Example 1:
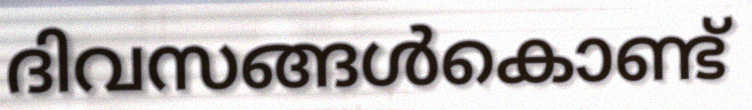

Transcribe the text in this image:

ദിവസങ്ങൾകൊണ്ട്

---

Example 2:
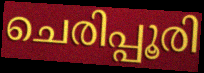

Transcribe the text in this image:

ചെരിപ്പൂരി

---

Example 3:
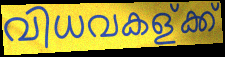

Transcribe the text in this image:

വിധവകള്ക്ക്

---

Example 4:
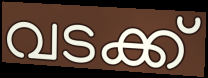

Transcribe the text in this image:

വടക്ക്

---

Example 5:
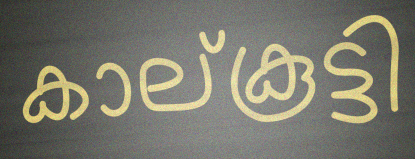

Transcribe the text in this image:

കാല്കൂട്ടി